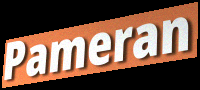
Pameran